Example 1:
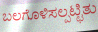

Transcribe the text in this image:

ಬಲಗೊಳಿಸಲ್ಪಟ್ಟಿತು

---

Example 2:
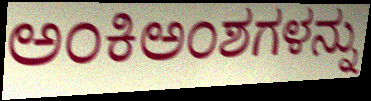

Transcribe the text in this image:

ಅಂಕಿಅಂಶಗಳನ್ನು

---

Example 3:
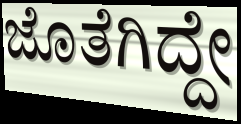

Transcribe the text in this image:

ಜೊತೆಗಿದ್ದೇ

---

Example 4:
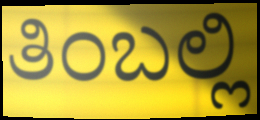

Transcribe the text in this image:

ತಿಂಬಲ್ಲಿ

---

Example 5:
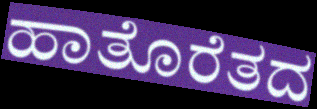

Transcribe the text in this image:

ಹಾತೊರೆತದ